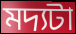
মদ্যটা